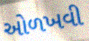
ઓળખવી